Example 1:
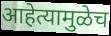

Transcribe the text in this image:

आहेत्यामुळेच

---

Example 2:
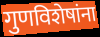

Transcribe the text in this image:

गुणविशेषांना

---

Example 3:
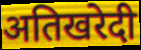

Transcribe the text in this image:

अतिखरेदी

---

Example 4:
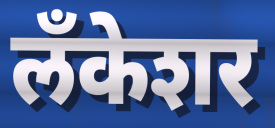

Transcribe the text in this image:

लँकेशर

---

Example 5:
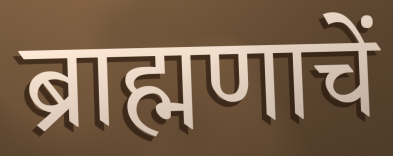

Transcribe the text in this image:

ब्राह्मणाचें